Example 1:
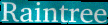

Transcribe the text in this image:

Raintree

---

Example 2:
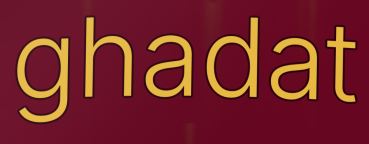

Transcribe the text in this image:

ghadat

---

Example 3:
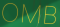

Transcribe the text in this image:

OMB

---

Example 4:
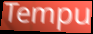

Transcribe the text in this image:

Tempu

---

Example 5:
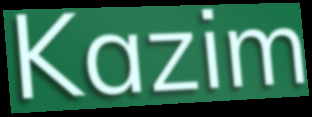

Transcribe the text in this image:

Kazim